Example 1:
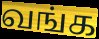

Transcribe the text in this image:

வங்க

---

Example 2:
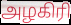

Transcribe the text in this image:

அழகிரி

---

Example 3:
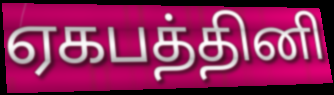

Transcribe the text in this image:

ஏகபத்தினி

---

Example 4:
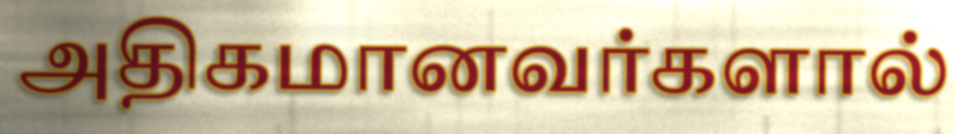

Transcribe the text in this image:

அதிகமானவர்களால்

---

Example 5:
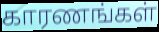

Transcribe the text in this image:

காரணங்கள்